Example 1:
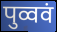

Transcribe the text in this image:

पुव्ववं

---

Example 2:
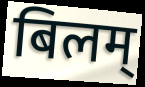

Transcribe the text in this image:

बिलम्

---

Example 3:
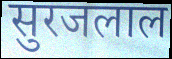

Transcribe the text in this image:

सुरजलाल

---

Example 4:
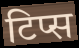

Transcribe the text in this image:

टिप्‍स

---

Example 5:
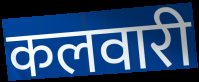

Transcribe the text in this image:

कलवारी